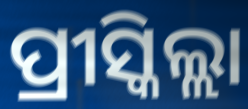
ପ୍ରୀସ୍କିଲ୍ଲା